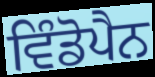
ਵਿੰਡੋਪੈਨ